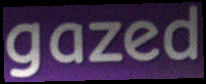
gazed